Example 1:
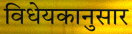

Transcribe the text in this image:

विधेयकानुसार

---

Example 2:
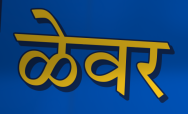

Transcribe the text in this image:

ळेवर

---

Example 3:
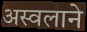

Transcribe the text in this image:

अस्वलाने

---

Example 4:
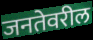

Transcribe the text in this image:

जनतेवरील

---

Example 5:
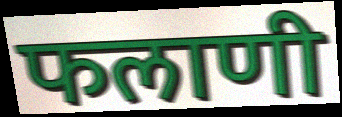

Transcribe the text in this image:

फलाणी